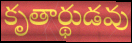
కృతార్థుడవు